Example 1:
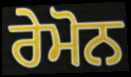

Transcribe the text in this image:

ਰੇਮੋਨ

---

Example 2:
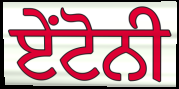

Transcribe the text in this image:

ਏਂਟੋਨੀ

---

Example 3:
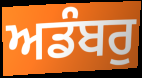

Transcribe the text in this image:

ਅਡੰਬਰੁ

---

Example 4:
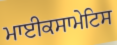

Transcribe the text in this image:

ਮਾਈਕਸਾਮੇਟਿਸ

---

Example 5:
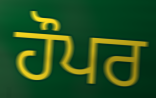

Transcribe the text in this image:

ਹੌਪਰ